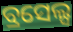
ବ୍ରସେଲ୍ସ